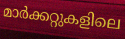
മാർക്കറ്റുകളിലെ